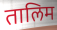
तालिम